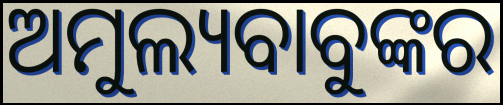
ଅମୁଲ୍ୟବାବୁଙ୍କର